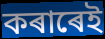
কৰাৰেই